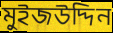
মুইজউদ্দিন